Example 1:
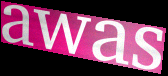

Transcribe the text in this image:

awas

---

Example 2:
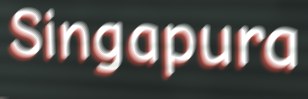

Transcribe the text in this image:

Singapura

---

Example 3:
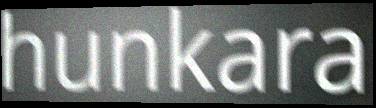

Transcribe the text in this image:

hunkara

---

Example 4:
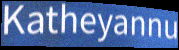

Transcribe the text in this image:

Katheyannu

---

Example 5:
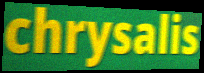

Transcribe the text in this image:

chrysalis